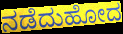
ನಡೆದುಹೋದ